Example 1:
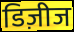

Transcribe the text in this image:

डिज़ीज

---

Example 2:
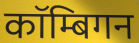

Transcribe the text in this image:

कॉम्बिगन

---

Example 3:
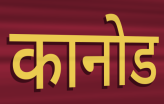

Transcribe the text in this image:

कानोड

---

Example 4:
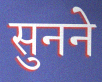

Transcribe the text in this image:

सुनने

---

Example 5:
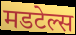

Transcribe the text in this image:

मडटेल्स